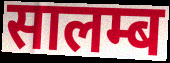
सालम्ब